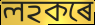
লহকৰে